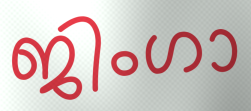
ജിംഗാ